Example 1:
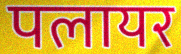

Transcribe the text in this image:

पलायर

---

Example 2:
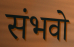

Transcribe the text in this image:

संभवो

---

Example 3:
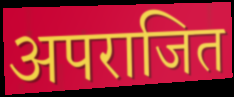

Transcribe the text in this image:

अपराजित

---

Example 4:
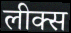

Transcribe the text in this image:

लीक्स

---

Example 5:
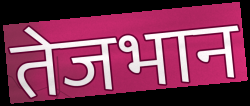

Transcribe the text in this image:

तेजभान